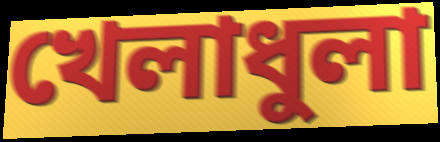
খেলাধুলা